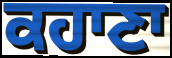
ਕਹਾਣਾ